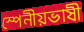
স্পেনীয়ভাষী